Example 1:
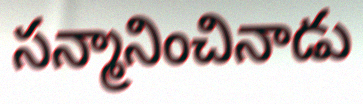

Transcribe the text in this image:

సన్మానించినాడు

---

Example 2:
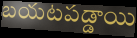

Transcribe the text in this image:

బయటపడ్డాయి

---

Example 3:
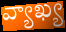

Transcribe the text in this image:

వ్యాఖ్య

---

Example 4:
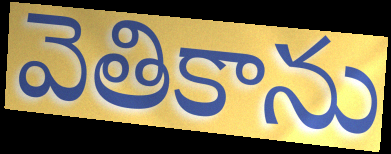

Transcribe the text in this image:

వెతికాను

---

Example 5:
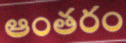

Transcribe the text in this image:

ఆంతరం